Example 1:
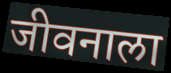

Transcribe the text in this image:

जीवनाला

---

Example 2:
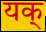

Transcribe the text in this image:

यक्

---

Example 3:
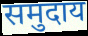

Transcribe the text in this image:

समुदाय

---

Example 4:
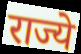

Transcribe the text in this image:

राज्ये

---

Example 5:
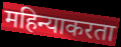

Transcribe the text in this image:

महिन्याकरता